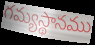
గమ్యస్థానము